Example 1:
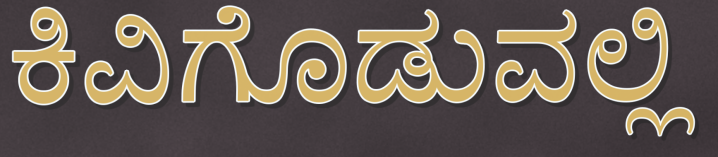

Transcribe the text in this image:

ಕಿವಿಗೊಡುವಲ್ಲಿ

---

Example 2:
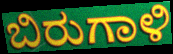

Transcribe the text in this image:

ಬಿರುಗಾಳಿ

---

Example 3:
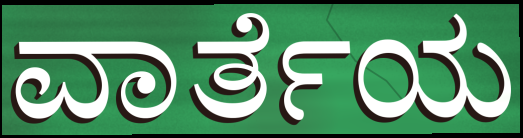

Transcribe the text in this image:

ವಾರ್ತೆಯ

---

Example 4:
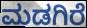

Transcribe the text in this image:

ಮಡಗಿರೆ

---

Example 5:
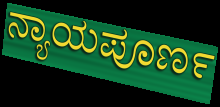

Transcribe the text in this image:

ನ್ಯಾಯಪೂರ್ಣ